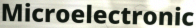
Microelectronic